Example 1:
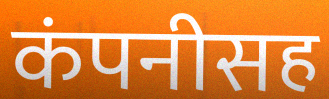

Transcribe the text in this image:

कंपनीसह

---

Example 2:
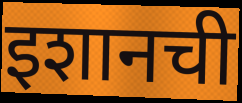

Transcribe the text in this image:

इशानची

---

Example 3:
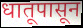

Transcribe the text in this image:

धातूपासून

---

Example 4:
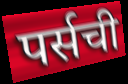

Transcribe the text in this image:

पर्सची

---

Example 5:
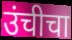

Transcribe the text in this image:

उंचीचा